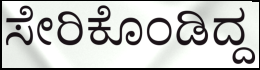
ಸೇರಿಕೊಂಡಿದ್ದ